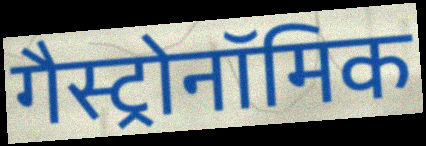
गैस्ट्रोनॉमिक